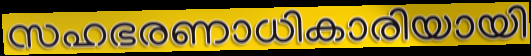
സഹഭരണാധികാരിയായി